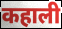
कहाली